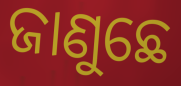
ଜାଣୁଛେ